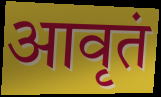
आवृतं